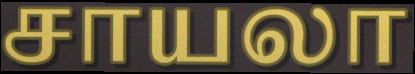
சாயலா